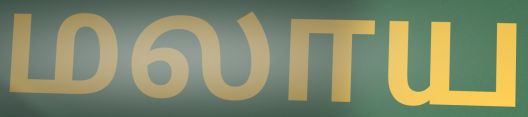
மலாய